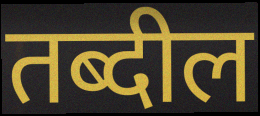
तब्‍दील